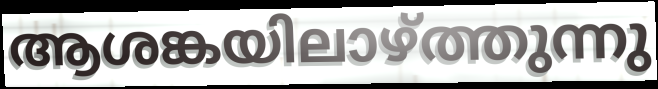
ആശങ്കയിലാഴ്ത്തുന്നു